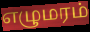
எழுமரம்